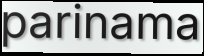
parinama